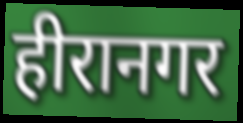
हीरानगर